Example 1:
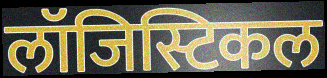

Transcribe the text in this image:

लॉजिस्टिकल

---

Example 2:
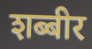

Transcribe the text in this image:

शब्बीर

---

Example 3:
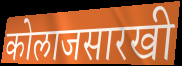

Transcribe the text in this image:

कोलाजसारखी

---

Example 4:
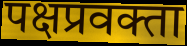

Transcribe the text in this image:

पक्षप्रवक्ता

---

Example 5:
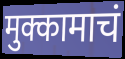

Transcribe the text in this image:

मुक्कामाचं